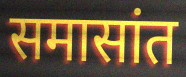
समासांत